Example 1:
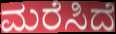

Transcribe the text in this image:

ಮರೆಸಿದೆ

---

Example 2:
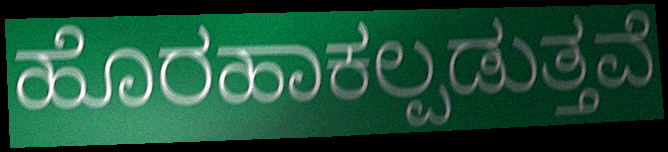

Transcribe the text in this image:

ಹೊರಹಾಕಲ್ಪಡುತ್ತವೆ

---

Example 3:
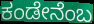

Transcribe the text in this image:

ಕಂಡೇನೆಂಬ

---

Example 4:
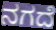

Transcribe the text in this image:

ನಗದೆ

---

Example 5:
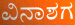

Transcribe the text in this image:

ವಿನಾಶಗ